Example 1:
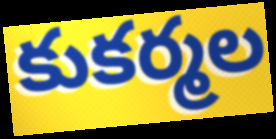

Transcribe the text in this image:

కుకర్మల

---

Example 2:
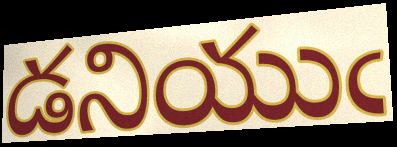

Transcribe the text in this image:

డనియుఁ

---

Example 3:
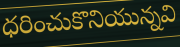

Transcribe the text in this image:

ధరించుకొనియున్నవి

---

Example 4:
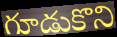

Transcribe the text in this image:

గూడుకొని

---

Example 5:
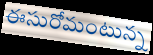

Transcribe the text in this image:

ఈసురోమంటున్న